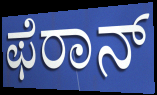
ಫೆರಾನ್